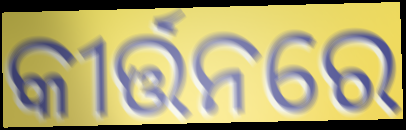
କୀର୍ତ୍ତନରେ